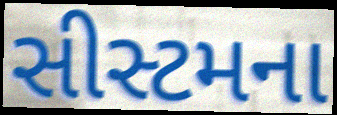
સીસ્ટમના